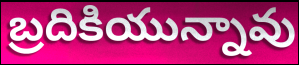
బ్రదికియున్నావు